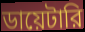
ডায়েটারি